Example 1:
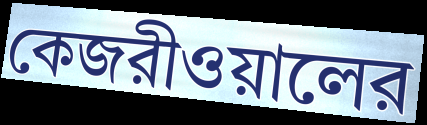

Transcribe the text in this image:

কেজরীওয়ালের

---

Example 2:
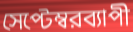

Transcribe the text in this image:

সেপ্টেম্বরব্যাপী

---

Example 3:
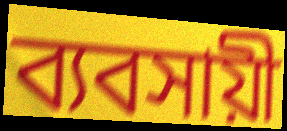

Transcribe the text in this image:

ব্যবসায়ী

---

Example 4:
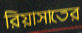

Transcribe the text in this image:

রিয়াসাতের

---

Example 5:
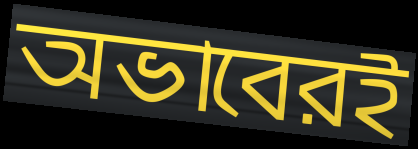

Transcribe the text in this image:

অভাবেরই